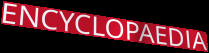
ENCYCLOPAEDIA